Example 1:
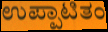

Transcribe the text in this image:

ಉಪ್ಪಾಟಿತಂ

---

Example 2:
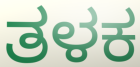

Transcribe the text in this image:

ತಳಕ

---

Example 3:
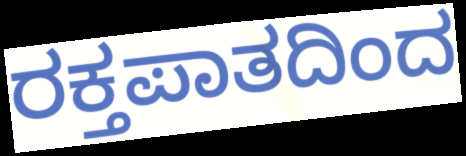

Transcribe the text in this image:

ರಕ್ತಪಾತದಿಂದ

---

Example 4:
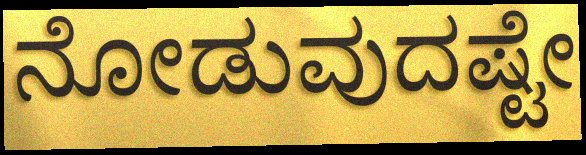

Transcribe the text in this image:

ನೋಡುವುದಷ್ಟೇ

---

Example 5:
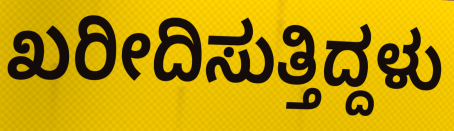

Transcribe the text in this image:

ಖರೀದಿಸುತ್ತಿದ್ದಳು